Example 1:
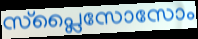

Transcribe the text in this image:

സ്പ്ലൈസോസോം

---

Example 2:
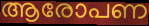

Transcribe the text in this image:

ആരോപണ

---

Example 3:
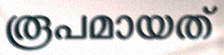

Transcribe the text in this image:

രൂപമായത്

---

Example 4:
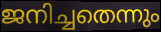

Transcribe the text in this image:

ജനിച്ചതെന്നും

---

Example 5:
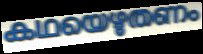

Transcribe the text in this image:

കഥയെഴുതണം